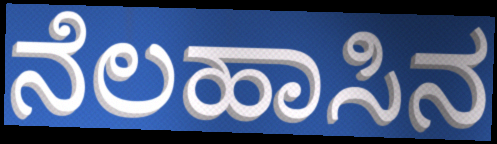
ನೆಲಹಾಸಿನ